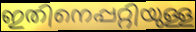
ഇതിനെപ്പറ്റിയുള്ള